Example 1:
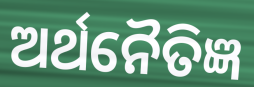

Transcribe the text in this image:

ଅର୍ଥନୈତିଜ୍ଞ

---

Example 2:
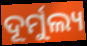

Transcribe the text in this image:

ଦୂର୍ମୁଲ୍ୟ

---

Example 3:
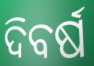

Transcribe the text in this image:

ଦିବର୍ଷ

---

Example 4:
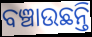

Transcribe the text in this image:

ବଞ୍ଚାଉଛନ୍ତି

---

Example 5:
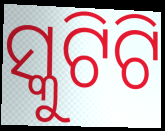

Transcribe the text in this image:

ସ୍କୁଟିଟି